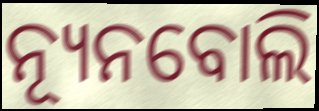
ନ୍ୟୂନବୋଲି